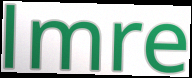
Imre